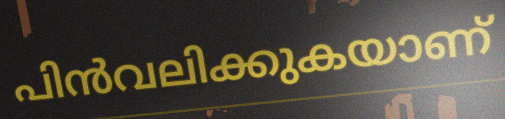
പിൻവലിക്കുകയാണ്